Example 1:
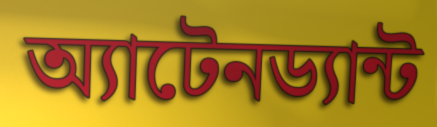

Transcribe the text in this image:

অ্যাটেনড্যান্ট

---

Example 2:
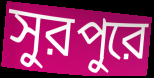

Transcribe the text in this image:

সুরপুরে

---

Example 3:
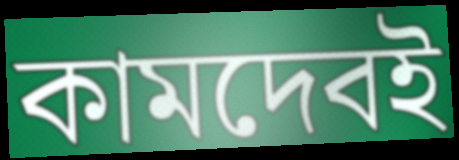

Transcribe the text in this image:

কামদেবই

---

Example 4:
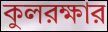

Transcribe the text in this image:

কুলরক্ষার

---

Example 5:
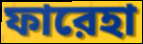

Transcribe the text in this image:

ফারেহা